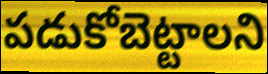
పడుకోబెట్టాలని